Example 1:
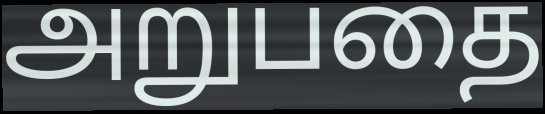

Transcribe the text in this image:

அறுபதை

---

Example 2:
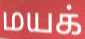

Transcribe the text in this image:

மயக்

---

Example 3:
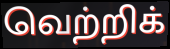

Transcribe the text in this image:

வெற்றிக்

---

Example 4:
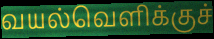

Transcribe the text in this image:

வயல்வெளிக்குச்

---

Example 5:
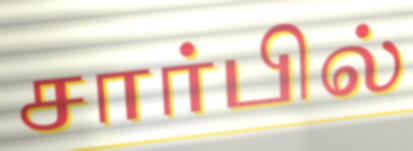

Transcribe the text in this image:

சார்பில்